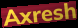
Axresh